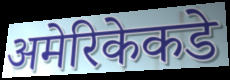
अमेरिकेकडे